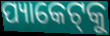
ପ୍ୟାକେଟ୍‌କୁ